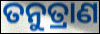
ତନୁତ୍ରାଣ